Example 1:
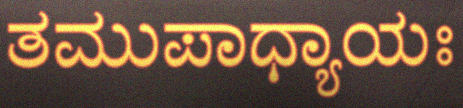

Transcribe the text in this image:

ತಮುಪಾಧ್ಯಾಯಃ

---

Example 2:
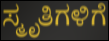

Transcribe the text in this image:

ಸ್ಮೃತಿಗಳಿಗೆ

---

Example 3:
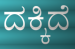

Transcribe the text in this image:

ದಕ್ಕಿದೆ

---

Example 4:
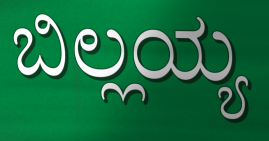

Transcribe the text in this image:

ಬಿಲ್ಲಯ್ಯ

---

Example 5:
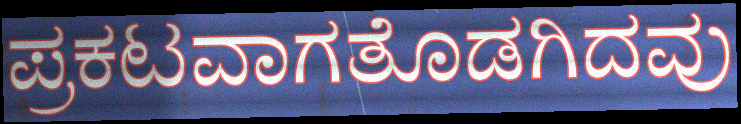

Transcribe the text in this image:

ಪ್ರಕಟವಾಗತೊಡಗಿದವು